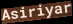
Asiriyar